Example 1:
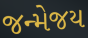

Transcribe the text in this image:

જન્મેજય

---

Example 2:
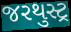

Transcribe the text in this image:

જરથુસ્ટ્ર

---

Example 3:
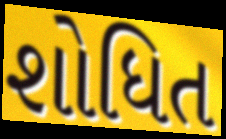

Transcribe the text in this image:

શોધિત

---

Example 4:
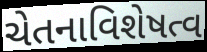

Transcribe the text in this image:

ચેતનાવિશેષત્વ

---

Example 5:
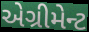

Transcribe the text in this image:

એગ્રીમેન્ટ